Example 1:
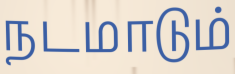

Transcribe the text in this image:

நடமாடும்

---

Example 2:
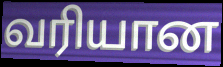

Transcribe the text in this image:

வரியான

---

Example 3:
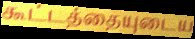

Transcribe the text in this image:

கூட்டத்தையுடைய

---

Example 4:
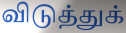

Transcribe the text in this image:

விடுத்துக்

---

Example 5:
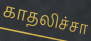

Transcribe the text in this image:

காதலிச்சா